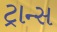
ટ્રાન્સ